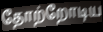
தோற்றோடிய